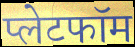
प्लेटफॉम